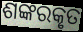
ଶଙ୍କରକୃତ